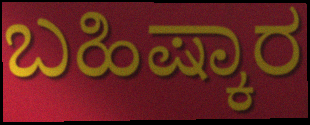
ಬಹಿಷ್ಕಾರ